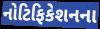
નોટિફિકેશનના